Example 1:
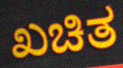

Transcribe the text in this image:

ಖಚಿತ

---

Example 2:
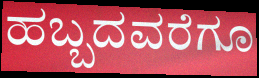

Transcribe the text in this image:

ಹಬ್ಬದವರೆಗೂ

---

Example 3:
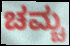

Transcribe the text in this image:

ಚಮ್ಚ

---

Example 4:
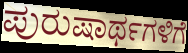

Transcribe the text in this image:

ಪುರುಷಾರ್ಥಗಳಿಗೆ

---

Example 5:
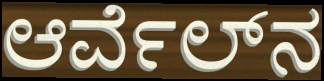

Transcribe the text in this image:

ಆರ್ವೆಲ್‍ನ